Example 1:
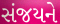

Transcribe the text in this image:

સંજયને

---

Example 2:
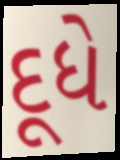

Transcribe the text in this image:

દૂધે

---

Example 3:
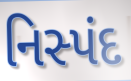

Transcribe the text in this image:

નિસ્પંદ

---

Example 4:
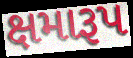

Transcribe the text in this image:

ક્ષમારૂપ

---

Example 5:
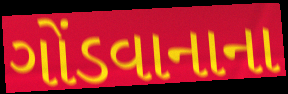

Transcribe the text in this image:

ગોંડવાનાના